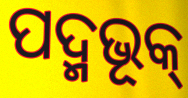
ପଦ୍ମଭୂକ୍